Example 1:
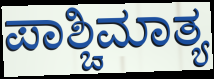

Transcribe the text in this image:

ಪಾಶ್ಚಿಮಾತ್ಯ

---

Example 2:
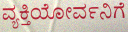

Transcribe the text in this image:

ವ್ಯಕ್ತಿಯೋರ್ವನಿಗೆ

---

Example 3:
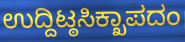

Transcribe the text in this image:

ಉದ್ದಿಟ್ಠಸಿಕ್ಖಾಪದಂ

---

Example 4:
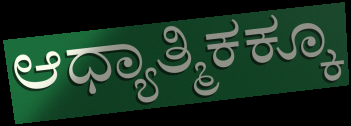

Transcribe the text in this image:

ಆಧ್ಯಾತ್ಮಿಕಕ್ಕೂ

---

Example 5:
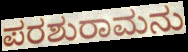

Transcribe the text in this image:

ಪರಶುರಾಮನು